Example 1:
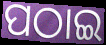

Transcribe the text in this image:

ପଠାଇ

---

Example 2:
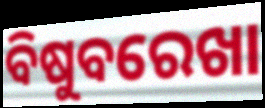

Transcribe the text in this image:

ବିଷୁବରେଖା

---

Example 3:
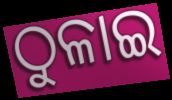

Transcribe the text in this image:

ଠୁଳାଇ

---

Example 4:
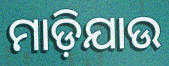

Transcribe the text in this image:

ମାଡ଼ିଯାଉ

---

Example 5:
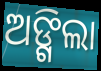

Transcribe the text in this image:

ଅଙ୍ଗିଲା